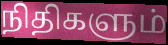
நிதிகளும்